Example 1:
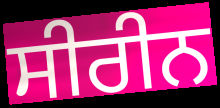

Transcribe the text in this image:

ਸੀਰੀਨ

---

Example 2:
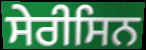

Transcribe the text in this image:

ਸੇਰੀਸਿਨ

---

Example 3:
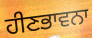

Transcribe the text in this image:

ਹੀਣਭਾਵਨਾ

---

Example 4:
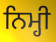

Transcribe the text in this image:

ਨਿਮ੍ਹੀ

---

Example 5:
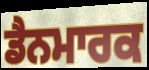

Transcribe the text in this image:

ਡੈਨਮਾਰਕ